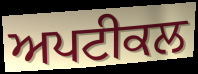
ਅਪਟੀਕਲ